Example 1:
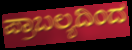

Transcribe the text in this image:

ಪ್ರಾಬಲ್ಯದಿಂದ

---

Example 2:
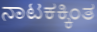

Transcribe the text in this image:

ನಾಟಕಕ್ಕಿಂತ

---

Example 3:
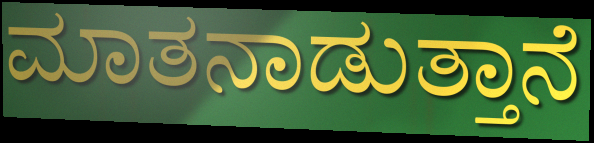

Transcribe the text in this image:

ಮಾತನಾಡುತ್ತಾನೆ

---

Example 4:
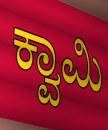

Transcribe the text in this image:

ಕ್ವಾಮಿ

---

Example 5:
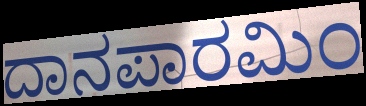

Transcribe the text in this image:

ದಾನಪಾರಮಿಂ